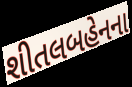
શીતલબહેનના